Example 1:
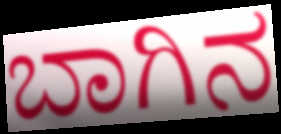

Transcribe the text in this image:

ಬಾಗಿನ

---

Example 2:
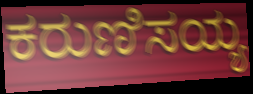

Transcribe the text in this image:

ಕರುಣಿಸಯ್ಯ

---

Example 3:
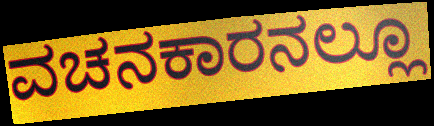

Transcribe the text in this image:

ವಚನಕಾರನಲ್ಲೂ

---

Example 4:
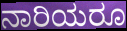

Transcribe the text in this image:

ನಾರಿಯರೂ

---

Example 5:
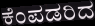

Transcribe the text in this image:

ಕೆಂಪಡರಿದ